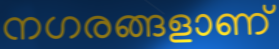
നഗരങ്ങളാണ്